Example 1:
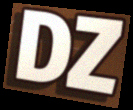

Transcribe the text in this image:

DZ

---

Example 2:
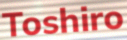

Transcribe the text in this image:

Toshiro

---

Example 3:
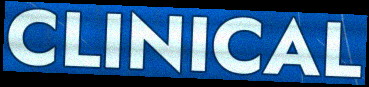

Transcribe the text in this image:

CLINICAL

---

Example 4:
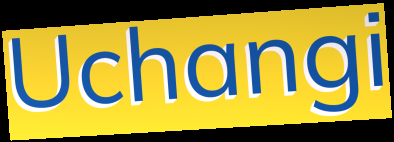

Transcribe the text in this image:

Uchangi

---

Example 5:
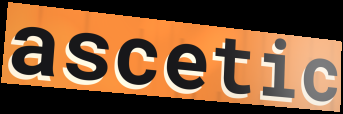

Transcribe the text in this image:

ascetic